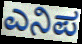
ಎನಿಪ